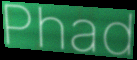
Phad